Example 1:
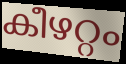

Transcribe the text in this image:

കീഴറ്റം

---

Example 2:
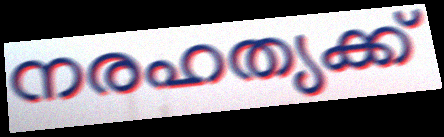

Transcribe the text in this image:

നരഹത്യക്ക്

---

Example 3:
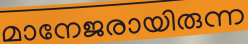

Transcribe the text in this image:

മാനേജരായിരുന്ന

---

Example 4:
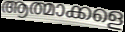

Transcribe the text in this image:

ആത്മാക്കളെ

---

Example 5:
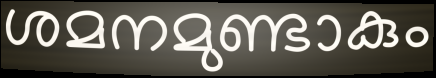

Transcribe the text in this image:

ശമനമുണ്ടാകും